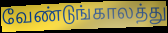
வேண்டுங்காலத்து